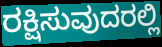
ರಕ್ಷಿಸುವುದರಲ್ಲಿ